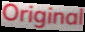
Original